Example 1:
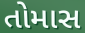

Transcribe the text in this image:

તોમાસ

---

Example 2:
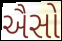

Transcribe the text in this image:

ઐસો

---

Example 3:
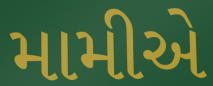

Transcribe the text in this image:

મામીએ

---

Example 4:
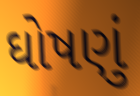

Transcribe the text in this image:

ઘોષણું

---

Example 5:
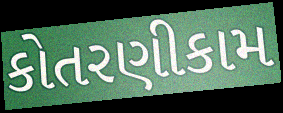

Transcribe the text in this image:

કોતરણીકામ